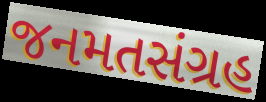
જનમતસંગ્રહ